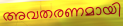
അവതരണമായി